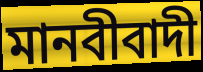
মানবীবাদী